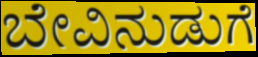
ಬೇವಿನುಡುಗೆ